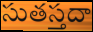
సుతస్తదా